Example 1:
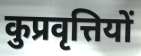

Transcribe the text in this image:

कुप्रवृत्तियों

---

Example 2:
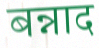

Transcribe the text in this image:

बन्नाद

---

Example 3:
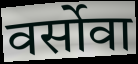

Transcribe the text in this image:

वर्सोवा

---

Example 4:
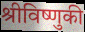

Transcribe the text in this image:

श्रीविष्णुकी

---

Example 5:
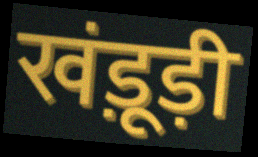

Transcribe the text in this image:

खंड़ूड़ी